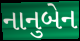
નાનુબેન